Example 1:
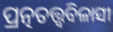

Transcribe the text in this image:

ପ୍ରତ୍ନତତ୍ତ୍ବବିଳାସୀ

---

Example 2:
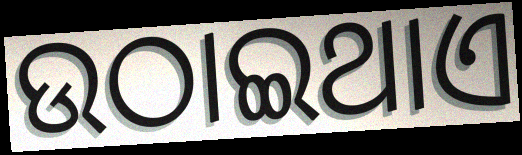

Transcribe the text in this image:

ଉଠାଇଥାଏ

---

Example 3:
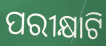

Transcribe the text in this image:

ପରୀକ୍ଷାଟି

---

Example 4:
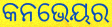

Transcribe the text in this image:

କନଭେୟର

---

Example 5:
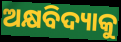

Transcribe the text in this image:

ଅକ୍ଷବିଦ୍ୟାକୁ